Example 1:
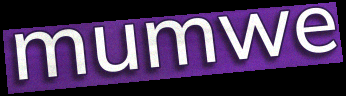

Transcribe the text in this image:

mumwe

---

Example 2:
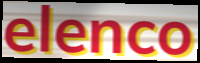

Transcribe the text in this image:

elenco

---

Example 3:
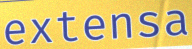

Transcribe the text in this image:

extensa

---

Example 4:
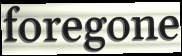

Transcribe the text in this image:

foregone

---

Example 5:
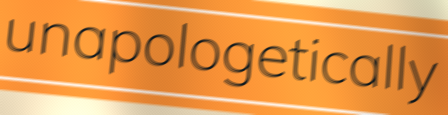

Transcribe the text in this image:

unapologetically